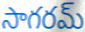
సాగరమ్